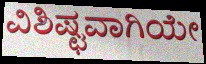
ವಿಶಿಷ್ಟವಾಗಿಯೇ